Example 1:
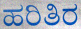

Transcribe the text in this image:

ಹರಿತಿರ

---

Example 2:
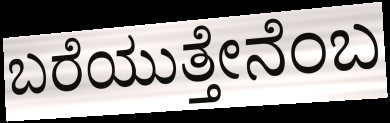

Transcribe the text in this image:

ಬರೆಯುತ್ತೇನೆಂಬ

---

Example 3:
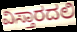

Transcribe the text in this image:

ವಿಸ್ತಾರದಲಿ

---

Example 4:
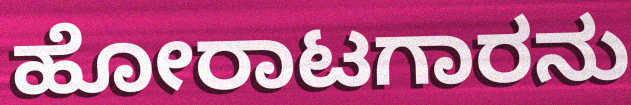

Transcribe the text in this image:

ಹೋರಾಟಗಾರನು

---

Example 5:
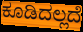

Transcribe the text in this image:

ಕೂಡಿದಲ್ಲದೆ